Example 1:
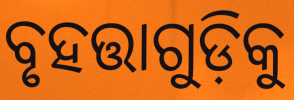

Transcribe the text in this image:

ବୃହତ୍ତାଗୁଡ଼ିକୁ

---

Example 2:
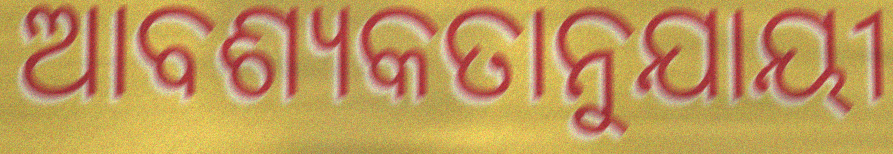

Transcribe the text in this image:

ଆବଶ୍ୟକତାନୁଯାୟୀ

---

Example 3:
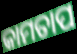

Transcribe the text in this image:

କାମତାପ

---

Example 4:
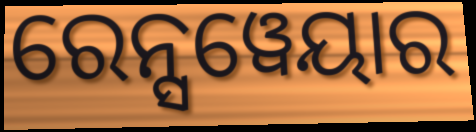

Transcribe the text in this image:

ରେନ୍ସୱେୟାର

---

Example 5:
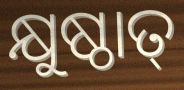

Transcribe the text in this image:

କ୍ଷୁଷ୍ଠାତ୍